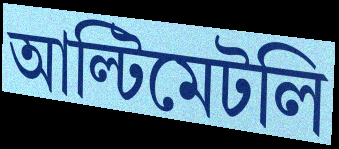
আল্টিমেটলি